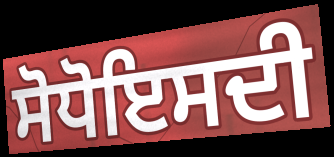
ਸੋਧੋਇਸਦੀ